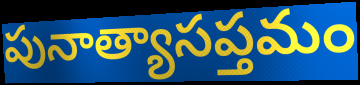
పునాత్యాసప్తమం